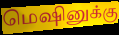
மெஷினுக்கு